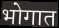
भोगात